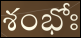
శంభోః